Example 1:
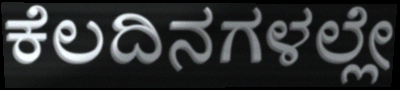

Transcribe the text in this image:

ಕೆಲದಿನಗಳಲ್ಲೇ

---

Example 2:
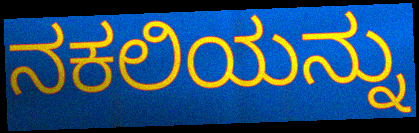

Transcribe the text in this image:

ನಕಲಿಯನ್ನು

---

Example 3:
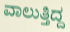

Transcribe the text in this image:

ವಾಲುತ್ತಿದ್ದ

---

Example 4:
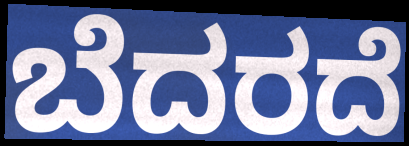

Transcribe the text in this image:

ಬೆದರದೆ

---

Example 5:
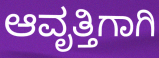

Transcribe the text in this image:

ಆವೃತ್ತಿಗಾಗಿ